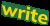
write